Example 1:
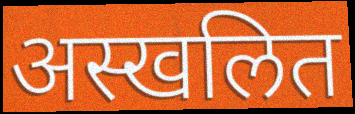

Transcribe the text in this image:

अस्खलित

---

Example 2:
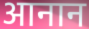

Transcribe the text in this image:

आनान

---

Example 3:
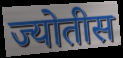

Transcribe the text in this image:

ज्योतीस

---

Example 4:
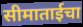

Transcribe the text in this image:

सीमाताईचा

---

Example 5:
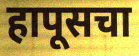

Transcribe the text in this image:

हापूसचा